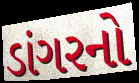
ડાંગરનો